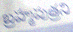
బ్రహ్మపుత్రని